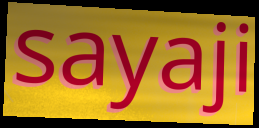
sayaji